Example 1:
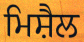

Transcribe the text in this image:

ਮਿਸ਼ੈਲ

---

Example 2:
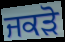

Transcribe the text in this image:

ਜਕੜੋ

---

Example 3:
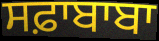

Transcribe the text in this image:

ਸਫ਼ਾਬਾਬਾ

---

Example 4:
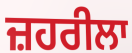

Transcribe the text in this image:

ਜ਼ਹਰੀਲਾ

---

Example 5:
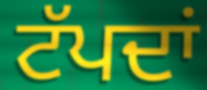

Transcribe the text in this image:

ਟੱਪਦਾਂ